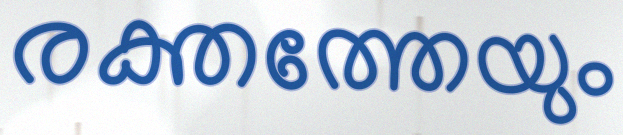
രക്തത്തേയും